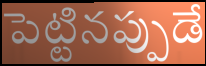
పెట్టినప్పుడే